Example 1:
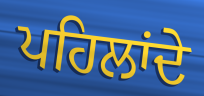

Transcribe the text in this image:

ਪਹਿਲਾਂਦੇ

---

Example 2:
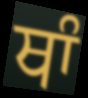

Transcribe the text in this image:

ਥਾੰ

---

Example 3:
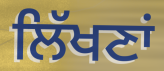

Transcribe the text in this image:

ਲਿੱਖਣਾਂ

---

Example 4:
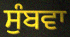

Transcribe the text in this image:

ਸੁੰਬਵਾ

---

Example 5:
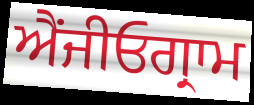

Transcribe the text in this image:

ਐਂਜੀਓਗ੍ਰਾਮ